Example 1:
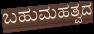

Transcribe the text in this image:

ಬಹುಮಹತ್ವದ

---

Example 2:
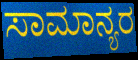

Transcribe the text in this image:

ಸಾಮಾನ್ಯರ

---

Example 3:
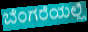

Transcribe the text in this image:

ಬೆಂಗರೆಯಲ್ಲಿ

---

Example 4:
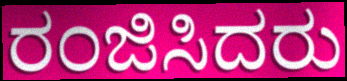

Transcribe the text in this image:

ರಂಜಿಸಿದರು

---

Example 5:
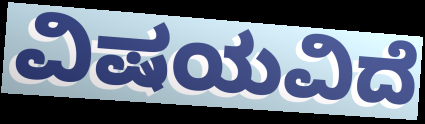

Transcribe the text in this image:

ವಿಷಯವಿದೆ